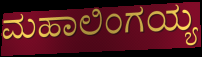
ಮಹಾಲಿಂಗಯ್ಯ